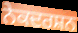
ਨੇਕਦਰਸ਼ਨ